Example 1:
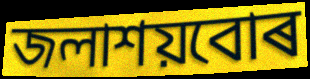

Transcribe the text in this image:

জলাশয়বোৰ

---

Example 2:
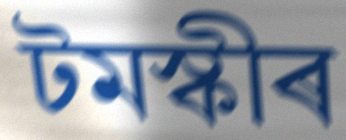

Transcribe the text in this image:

টমস্কীৰ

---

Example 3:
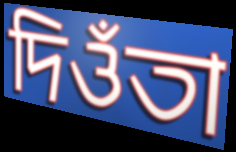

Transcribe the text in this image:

দিওঁতা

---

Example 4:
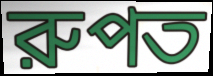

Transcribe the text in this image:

ৰুপত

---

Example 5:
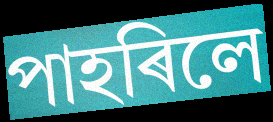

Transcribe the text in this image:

পাহৰিলে